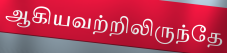
ஆகியவற்றிலிருந்தே